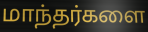
மாந்தர்களை